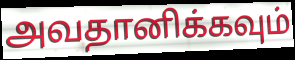
அவதானிக்கவும்